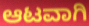
ಆಟವಾಗಿ